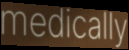
medically